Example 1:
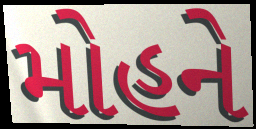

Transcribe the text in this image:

મોહને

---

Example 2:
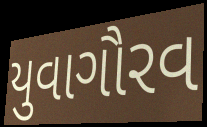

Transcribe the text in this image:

યુવાગૌરવ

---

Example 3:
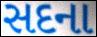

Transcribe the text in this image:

સદના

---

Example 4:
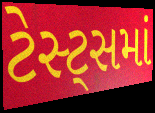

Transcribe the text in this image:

ટેસ્ટ્સમાં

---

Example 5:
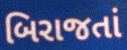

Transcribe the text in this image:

બિરાજતાં